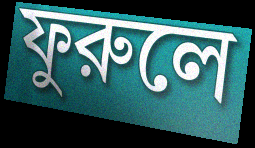
ফুরুলে